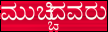
ಮುಚ್ಚಿದವರು